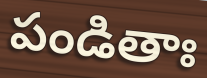
పండితాః